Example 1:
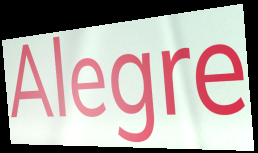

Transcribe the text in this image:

Alegre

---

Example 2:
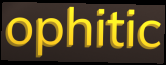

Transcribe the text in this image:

ophitic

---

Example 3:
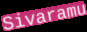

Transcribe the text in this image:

Sivaramu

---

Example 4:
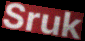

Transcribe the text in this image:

Sruk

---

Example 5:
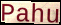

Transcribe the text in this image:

Pahu